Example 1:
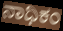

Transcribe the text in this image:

ನಾಧಿಕಂ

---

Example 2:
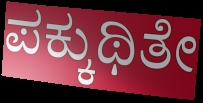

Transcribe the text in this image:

ಪಕ್ಕುಥಿತೇ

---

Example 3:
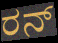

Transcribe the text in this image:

ರನ್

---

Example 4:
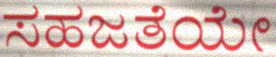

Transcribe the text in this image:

ಸಹಜತೆಯೇ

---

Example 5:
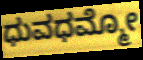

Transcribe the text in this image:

ಧುವಧಮ್ಮೋ